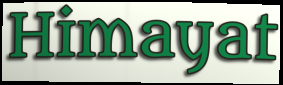
Himayat